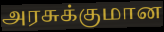
அரசுக்குமான